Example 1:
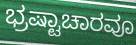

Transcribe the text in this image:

ಭ್ರಷ್ಟಾಚಾರವೂ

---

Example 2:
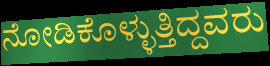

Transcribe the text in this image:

ನೋಡಿಕೊಳ್ಳುತ್ತಿದ್ದವರು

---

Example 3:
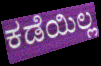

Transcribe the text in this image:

ಕಡೆಯಿಲ್ಲ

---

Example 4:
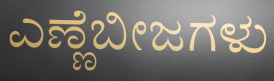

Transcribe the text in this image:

ಎಣ್ಣೆಬೀಜಗಳು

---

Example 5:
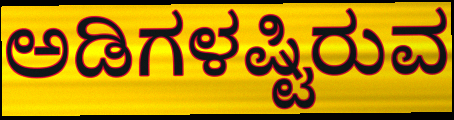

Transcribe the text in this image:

ಅಡಿಗಳಷ್ಟಿರುವ